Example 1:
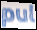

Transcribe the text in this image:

pul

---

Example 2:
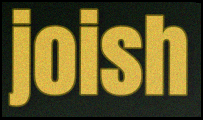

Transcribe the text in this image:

joish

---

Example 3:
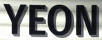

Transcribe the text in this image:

YEON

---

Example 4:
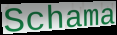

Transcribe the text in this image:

Schama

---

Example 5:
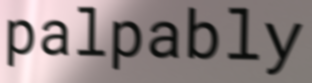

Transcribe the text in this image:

palpably